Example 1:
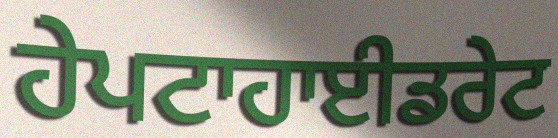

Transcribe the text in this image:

ਹੇਪਟਾਹਾਈਡਰੇਟ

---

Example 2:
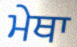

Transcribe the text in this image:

ਮੇਥਾ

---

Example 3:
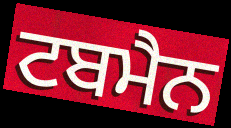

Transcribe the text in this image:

ਟਬਮੈਨ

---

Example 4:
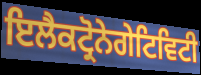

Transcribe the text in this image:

ਇਲੈਕਟ੍ਰੋਨੇਗੇਟਿਵਿਟੀ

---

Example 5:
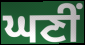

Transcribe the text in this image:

ਘਣੀਂ